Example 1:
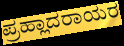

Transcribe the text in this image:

ಪ್ರಹ್ಲಾದರಾಯರ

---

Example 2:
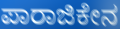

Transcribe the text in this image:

ಪಾರಾಜಿಕೇನ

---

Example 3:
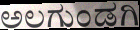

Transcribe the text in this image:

ಅಲಗುಂಡಗಿ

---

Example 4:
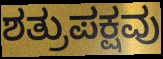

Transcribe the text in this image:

ಶತ್ರುಪಕ್ಷವು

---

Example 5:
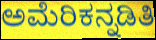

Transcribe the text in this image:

ಅಮೆರಿಕನ್ನಡಿತಿ